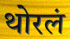
थोरलं